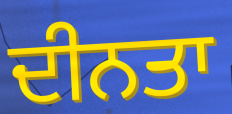
ਦੀਨਤਾ